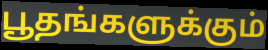
பூதங்களுக்கும்